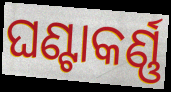
ଘଣ୍ଟାକର୍ଣ୍ଣ